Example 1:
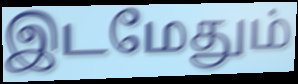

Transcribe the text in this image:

இடமேதும்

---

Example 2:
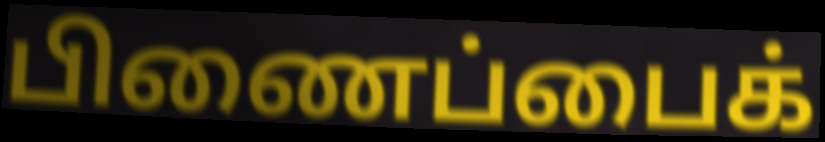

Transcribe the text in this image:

பிணைப்பைக்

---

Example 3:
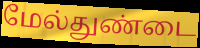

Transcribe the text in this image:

மேல்துண்டை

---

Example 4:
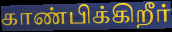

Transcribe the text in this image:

காண்பிக்கிறீர்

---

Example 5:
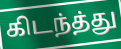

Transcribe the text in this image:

கிடந்த்து